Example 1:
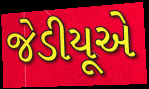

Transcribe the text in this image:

જેડીયૂએ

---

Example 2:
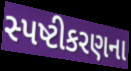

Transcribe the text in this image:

સ્પષ્ટીકરણના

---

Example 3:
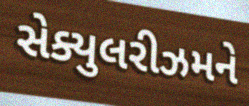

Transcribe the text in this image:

સેક્યુલરીઝમને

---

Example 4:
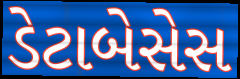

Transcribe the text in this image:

ડેટાબેસેસ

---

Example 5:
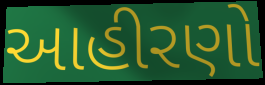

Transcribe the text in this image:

આહીરણો